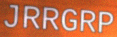
JRRGRP